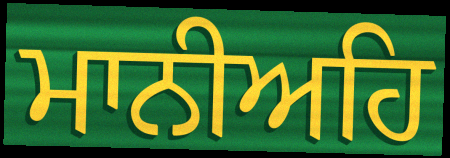
ਮਾਨੀਅਹਿ